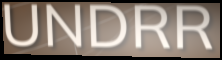
UNDRR